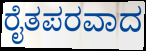
ರೈತಪರವಾದ